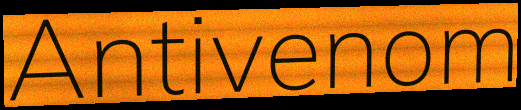
Antivenom